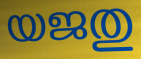
യജതു